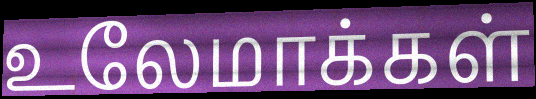
உலேமாக்கள்